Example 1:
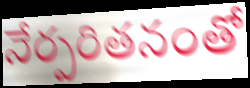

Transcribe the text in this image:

నేర్పరితనంతో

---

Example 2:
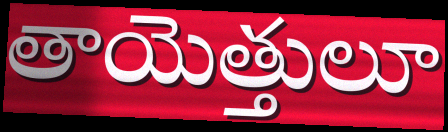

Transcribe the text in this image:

తాయెత్తులూ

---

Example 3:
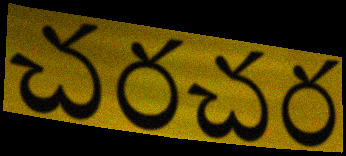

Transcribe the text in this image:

చరచర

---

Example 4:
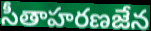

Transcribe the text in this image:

సీతాహరణజేన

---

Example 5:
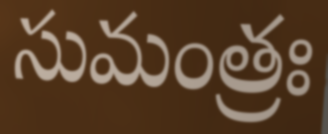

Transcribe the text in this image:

సుమంత్రః